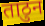
ताठुन